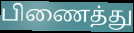
பிணைத்து